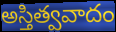
అస్తిత్వవాదం